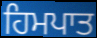
ਹਿਮਪਾਤ